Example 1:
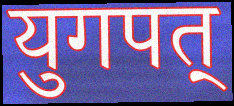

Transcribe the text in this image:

युगपत्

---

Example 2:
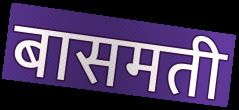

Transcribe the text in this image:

बासमती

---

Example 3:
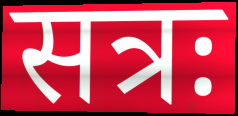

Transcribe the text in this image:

सत्रः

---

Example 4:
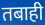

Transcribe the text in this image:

तबाही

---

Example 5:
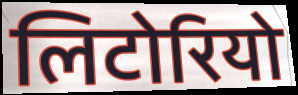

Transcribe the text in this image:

लिटोरियो